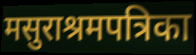
मसुराश्रमपत्रिका